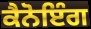
ਕੈਨੋਇੰਗ